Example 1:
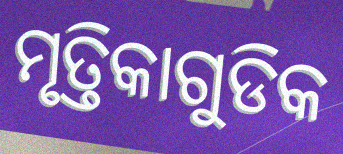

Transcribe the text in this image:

ମୃତ୍ତିକାଗୁଡିକ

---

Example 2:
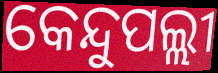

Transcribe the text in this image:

କେନ୍ଦୁପଲ୍ଲୀ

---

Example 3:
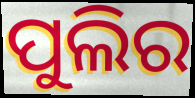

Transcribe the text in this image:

ପୁଲିର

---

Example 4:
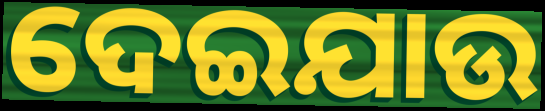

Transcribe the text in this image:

ଦେଇଯାଉ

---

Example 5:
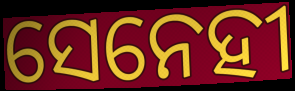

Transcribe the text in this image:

ସେନେହୀ